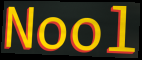
Nool